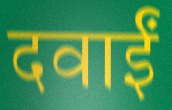
दवाईं